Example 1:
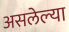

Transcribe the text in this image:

असलेल्या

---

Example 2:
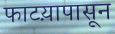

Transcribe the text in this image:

फाटय़ापासून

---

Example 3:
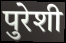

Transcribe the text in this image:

पुरेशी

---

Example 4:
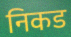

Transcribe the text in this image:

निकड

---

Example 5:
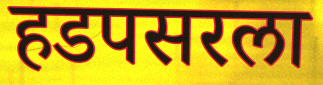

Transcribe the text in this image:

हडपसरला